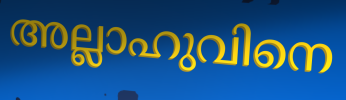
അല്ലാഹുവിനെ